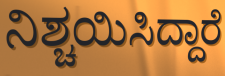
ನಿಶ್ಚಯಿಸಿದ್ದಾರೆ